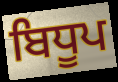
ਬਿਧੂਪ